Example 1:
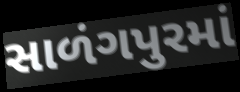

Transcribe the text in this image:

સાળંગપુરમાં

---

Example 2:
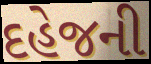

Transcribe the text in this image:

દહેજની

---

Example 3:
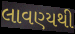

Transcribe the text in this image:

લાવણ્યથી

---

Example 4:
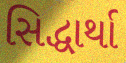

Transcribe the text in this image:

સિદ્ધાર્થા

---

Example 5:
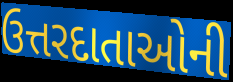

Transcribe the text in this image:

ઉત્તરદાતાઓની